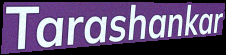
Tarashankar